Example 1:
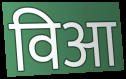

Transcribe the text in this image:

विआ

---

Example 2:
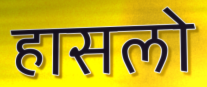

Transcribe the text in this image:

हासलो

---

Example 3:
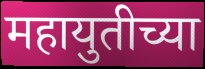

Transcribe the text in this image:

महायुतीच्या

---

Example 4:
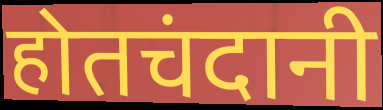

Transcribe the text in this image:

होतचंदानी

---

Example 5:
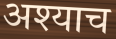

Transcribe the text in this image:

अश्याच